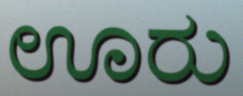
ಊರು